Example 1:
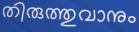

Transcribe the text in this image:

തിരുത്തുവാനും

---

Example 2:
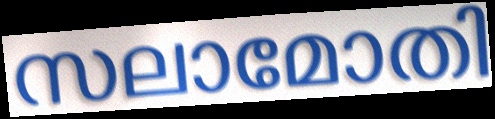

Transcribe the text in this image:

സലാമോതി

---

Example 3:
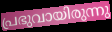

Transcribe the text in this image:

പ്രഭുവായിരുന്നു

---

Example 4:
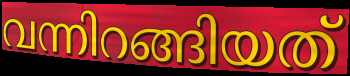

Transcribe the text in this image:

വന്നിറങ്ങിയത്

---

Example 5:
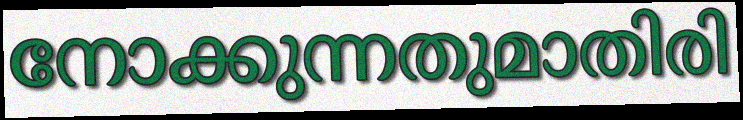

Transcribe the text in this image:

നോക്കുന്നതുമാതിരി